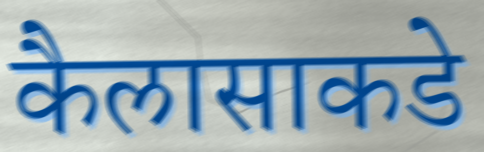
कैलासाकडे